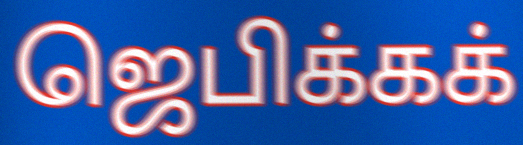
ஜெபிக்கக்